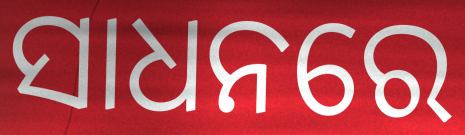
ସାଧନରେ